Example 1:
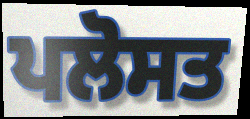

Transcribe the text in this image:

ਪਲੋਸਤ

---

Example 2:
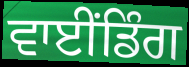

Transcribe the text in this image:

ਵਾਈਂਡਿੰਗ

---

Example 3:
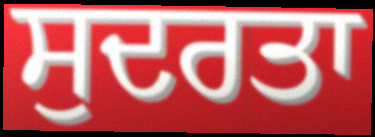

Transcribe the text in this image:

ਸੁਦਰਤਾ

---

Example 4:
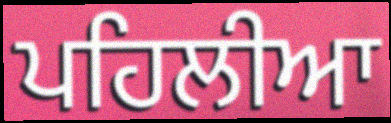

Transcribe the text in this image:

ਪਹਿਲੀਆ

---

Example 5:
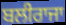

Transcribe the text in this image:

ਬਲੀਰਾਜਾ